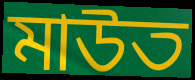
মাউত